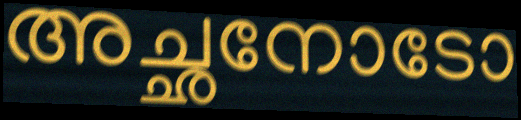
അച്ഛനോടോ